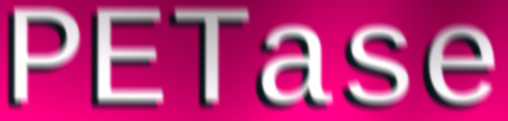
PETase